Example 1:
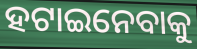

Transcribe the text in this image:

ହଟାଇନେବାକୁ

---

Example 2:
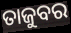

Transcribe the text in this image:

ତାଜୁବର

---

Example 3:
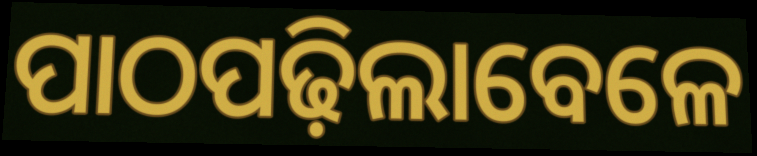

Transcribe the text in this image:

ପାଠପଢ଼ିଲାବେଳେ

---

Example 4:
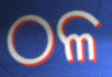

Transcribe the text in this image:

ଠଳ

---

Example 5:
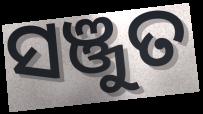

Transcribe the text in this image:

ସଞ୍ଜୁତ